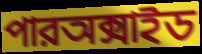
পারঅক্সাইড